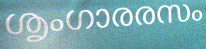
ശൃംഗാരരസം